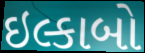
ઇલ્કાબો